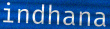
indhana